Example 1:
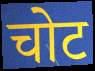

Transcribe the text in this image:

चोट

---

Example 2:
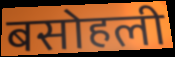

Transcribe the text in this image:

बसोहली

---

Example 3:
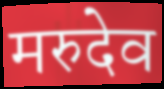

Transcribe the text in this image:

मरुदेव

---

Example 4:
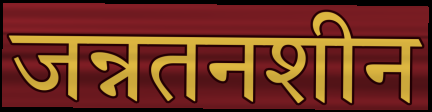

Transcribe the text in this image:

जन्नतनशीन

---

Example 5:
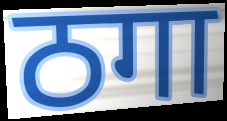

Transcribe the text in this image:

ठगा